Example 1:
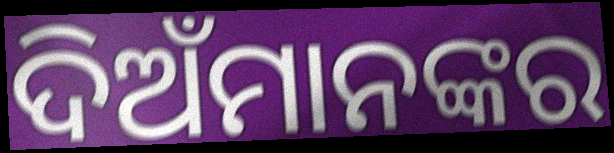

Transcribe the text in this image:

ଦିଅଁମାନଙ୍କର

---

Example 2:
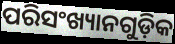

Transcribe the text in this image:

ପରିସଂଖ୍ୟାନଗୁଡ଼ିକ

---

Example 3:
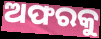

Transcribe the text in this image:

ଅଫରକୁ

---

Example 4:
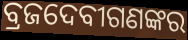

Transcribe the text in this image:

ବ୍ରଜଦେବୀଗଣଙ୍କର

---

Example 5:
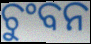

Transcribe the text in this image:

ଚୁଂବନ